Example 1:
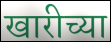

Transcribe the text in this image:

खारीच्या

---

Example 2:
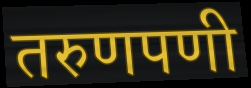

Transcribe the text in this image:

तरुणपणी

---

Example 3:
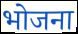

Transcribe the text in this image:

भोजना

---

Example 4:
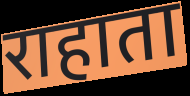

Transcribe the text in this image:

राहाता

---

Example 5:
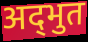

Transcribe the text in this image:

अद्‌भुत